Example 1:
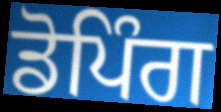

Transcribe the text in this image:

ਡੋਪਿੰਗ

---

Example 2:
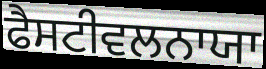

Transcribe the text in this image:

ਫੈਸਟੀਵਲਨਾਯਾ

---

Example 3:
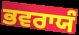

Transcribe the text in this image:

ਭਵਰਾਯੰ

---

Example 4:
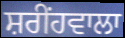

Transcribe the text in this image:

ਸ਼ਰੀਂਹਵਾਲਾ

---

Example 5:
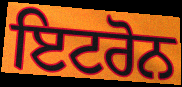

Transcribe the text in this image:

ਇਟਰੋਨ